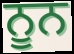
ਨੂਨ